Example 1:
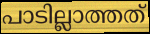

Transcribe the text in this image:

പാടില്ലാത്തത്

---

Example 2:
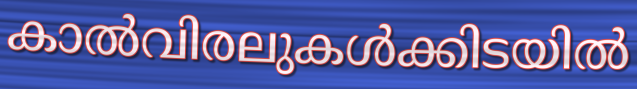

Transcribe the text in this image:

കാൽവിരലുകൾക്കിടയിൽ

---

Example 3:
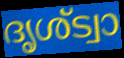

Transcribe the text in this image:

ദൃശ്ട്വാ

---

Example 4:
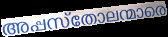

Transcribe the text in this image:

അപ്പസ്‌തോലന്മാരെ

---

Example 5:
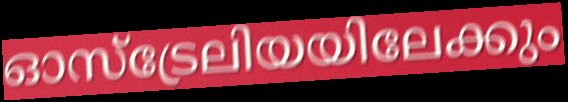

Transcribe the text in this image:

ഓസ്ട്രേലിയയിലേക്കും